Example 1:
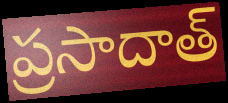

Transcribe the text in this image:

ప్రసాదాత్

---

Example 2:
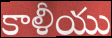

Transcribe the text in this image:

కాళీయు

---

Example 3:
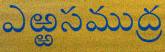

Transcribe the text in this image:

ఎఱ్ఱసముద్ర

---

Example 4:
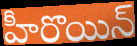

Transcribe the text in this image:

హీరొయిన్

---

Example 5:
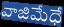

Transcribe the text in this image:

వాజిమేధే